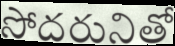
సోదరునితో